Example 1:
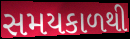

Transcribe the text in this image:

સમયકાળથી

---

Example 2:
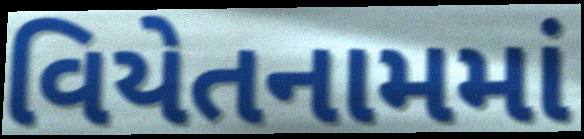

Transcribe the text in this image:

વિયેતનામમાં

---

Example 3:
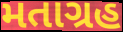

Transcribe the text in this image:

મતાગ્રહ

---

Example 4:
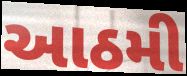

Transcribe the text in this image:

આઠમી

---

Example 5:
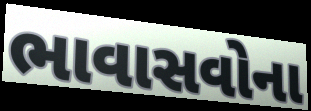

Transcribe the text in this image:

ભાવાસવોના